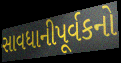
સાવધાનીપૂર્વકનો